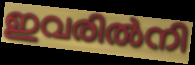
ഇവരിൽനി